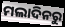
ମଲାଦିନରୁ